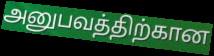
அனுபவத்திற்கான